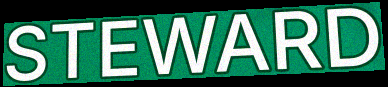
STEWARD